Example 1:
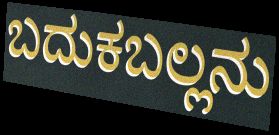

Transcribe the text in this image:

ಬದುಕಬಲ್ಲನು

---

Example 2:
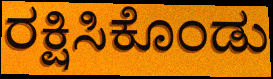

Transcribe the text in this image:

ರಕ್ಷಿಸಿಕೊಂಡು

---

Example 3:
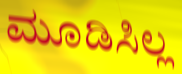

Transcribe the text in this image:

ಮೂಡಿಸಿಲ್ಲ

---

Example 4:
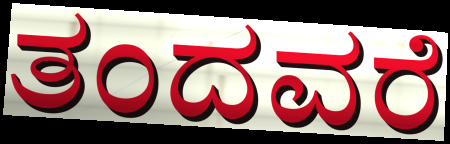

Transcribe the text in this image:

ತಂದವರೆ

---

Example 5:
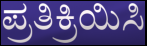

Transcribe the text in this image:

ಪ್ರತಿಕ್ರಿಯಿಸಿ